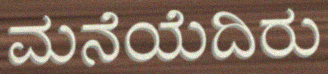
ಮನೆಯೆದಿರು